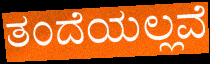
ತಂದೆಯಲ್ಲವೆ